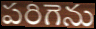
పరిగెను